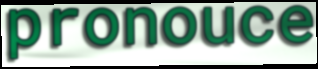
pronouce